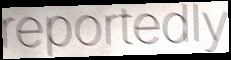
reportedly